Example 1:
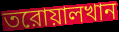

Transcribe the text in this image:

তরোয়ালখান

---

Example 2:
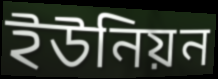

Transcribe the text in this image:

ইউনিয়ন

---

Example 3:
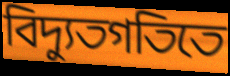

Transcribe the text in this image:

বিদ্যুতগতিতে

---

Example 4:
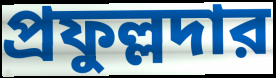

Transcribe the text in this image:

প্রফুল্লদার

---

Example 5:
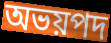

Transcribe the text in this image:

অভয়পদ